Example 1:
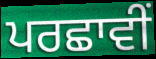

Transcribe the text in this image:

ਪਰਛਾਵੀਂ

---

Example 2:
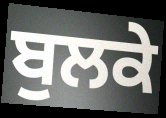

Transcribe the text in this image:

ਬੁਲਕੇ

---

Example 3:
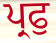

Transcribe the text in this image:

ਪ੍ਰਫੁ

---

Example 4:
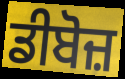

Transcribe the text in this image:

ਡੀਬੋਜ਼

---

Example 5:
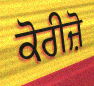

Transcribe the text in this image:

ਕੋਰੀਜ਼ੋ